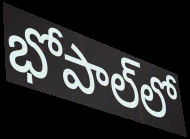
భోపాల్‌లో